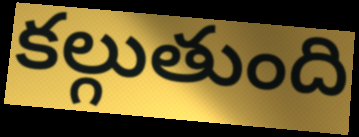
కల్గుతుంది